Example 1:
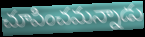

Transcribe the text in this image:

చూపించమన్నాడు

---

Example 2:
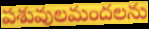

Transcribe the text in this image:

పశువులమందలను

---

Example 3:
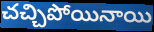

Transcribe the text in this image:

చచ్చిపోయినాయి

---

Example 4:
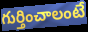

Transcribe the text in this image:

గుర్తించాలంటే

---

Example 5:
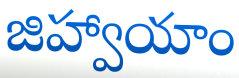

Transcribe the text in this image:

జిహ్వాయాం